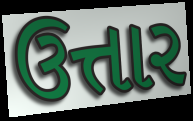
ઉત્તાર